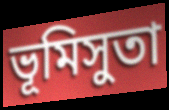
ভূমিসুতা